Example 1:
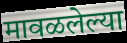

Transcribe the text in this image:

मावळलेल्या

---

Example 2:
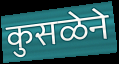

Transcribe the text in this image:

कुसळेने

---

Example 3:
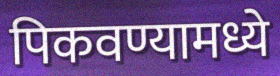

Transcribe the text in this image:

पिकवण्यामध्ये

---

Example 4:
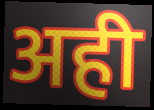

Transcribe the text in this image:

अही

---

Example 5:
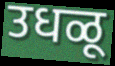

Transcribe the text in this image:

उधळू